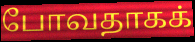
போவதாகக்